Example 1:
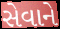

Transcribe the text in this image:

સેવાને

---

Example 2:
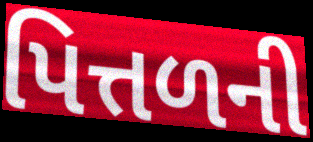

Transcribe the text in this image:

પિત્તળની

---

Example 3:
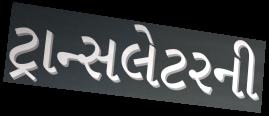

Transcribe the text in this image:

ટ્રાન્સલેટરની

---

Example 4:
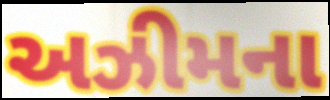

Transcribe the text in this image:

અઝીમના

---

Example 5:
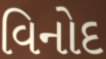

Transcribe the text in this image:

વિનોદ